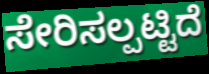
ಸೇರಿಸಲ್ಪಟ್ಟಿದೆ